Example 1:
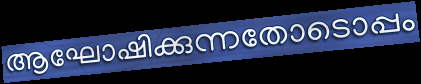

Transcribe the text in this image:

ആഘോഷിക്കുന്നതോടൊപ്പം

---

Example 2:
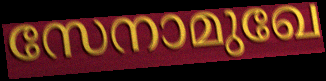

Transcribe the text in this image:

സേനാമുഖേ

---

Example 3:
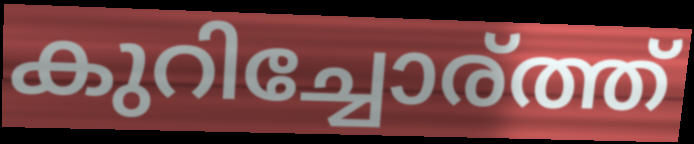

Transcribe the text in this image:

കുറിച്ചോര്ത്ത്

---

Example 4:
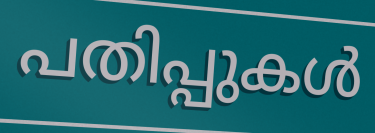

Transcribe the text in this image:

പതിപ്പുകൾ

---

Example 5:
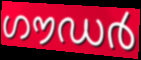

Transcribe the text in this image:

ഗൗഡർ